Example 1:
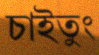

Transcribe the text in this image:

চাইতুং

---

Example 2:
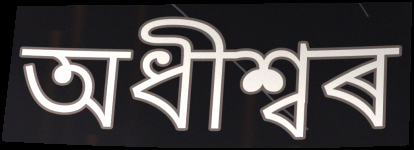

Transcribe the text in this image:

অধীশ্বৰ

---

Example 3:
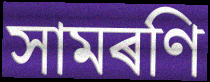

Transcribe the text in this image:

সামৰণি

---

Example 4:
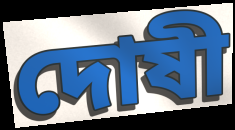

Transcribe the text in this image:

দোষী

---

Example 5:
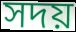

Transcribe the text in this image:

সদয়